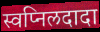
स्वप्निलदादा